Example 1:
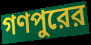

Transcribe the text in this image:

গণপুরের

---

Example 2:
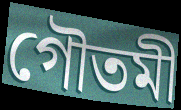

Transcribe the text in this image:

গৌতমী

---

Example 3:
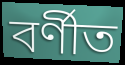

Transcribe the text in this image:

বর্ণীত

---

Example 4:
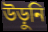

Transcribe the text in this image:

উড়ুনি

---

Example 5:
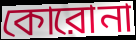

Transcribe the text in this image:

কোরোনা